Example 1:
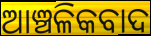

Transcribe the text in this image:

ଆଞ୍ଚଳିକବାଦ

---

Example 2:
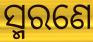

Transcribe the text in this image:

ସ୍ମରଣେ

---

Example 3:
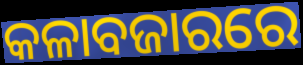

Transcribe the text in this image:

କଳାବଜାରରେ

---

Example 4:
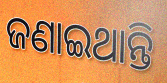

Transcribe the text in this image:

ଜଣାଇଥାନ୍ତି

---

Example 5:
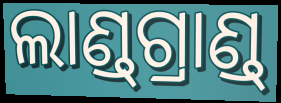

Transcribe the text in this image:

ଲାଣ୍ଡ୍‍ଗ୍ରାଣ୍ଡ୍